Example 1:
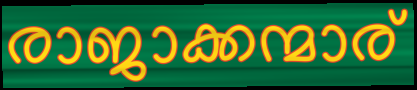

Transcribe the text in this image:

രാജാക്കന്മാര്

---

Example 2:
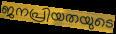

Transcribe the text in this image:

ജനപ്രിയതയുടെ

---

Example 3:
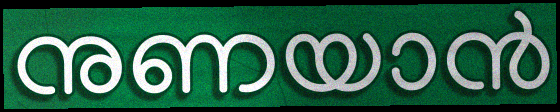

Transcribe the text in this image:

നുണയാൻ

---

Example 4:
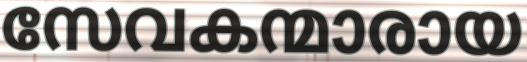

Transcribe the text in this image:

സേവകന്മാരായ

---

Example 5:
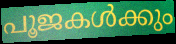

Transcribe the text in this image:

പൂജകൾക്കും